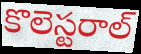
కొలెస్టరాల్